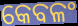
କେବଳଂ